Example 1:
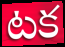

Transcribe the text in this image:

టక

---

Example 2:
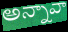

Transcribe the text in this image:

అన్నావా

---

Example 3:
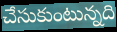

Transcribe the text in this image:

చేసుకుంటున్నది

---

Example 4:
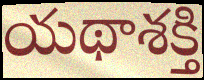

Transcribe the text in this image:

యథాశక్తి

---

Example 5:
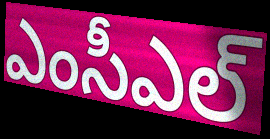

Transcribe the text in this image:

ఎంసీఎల్